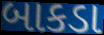
બાકડા